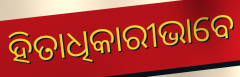
ହିତାଧିକାରୀଭାବେ